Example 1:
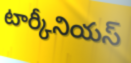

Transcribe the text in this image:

టార్కీనియస్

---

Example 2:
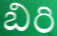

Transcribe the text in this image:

బిరి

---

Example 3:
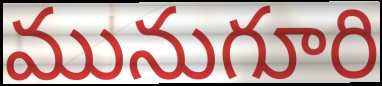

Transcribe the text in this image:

మునుగూరి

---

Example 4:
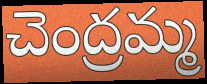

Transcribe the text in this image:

చెంద్రమ్మ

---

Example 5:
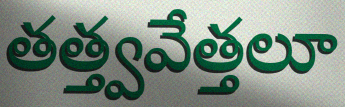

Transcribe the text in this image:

తత్త్వవేత్తలూ